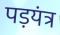
पड़यंत्र